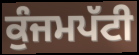
ਕੁੰਜਮਪੱਟੀ